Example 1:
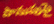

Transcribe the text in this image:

పానుపుపై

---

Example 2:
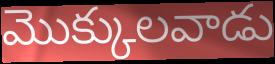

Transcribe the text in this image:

మొక్కులవాడు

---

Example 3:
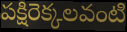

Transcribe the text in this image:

పక్షిరెక్కలవంటి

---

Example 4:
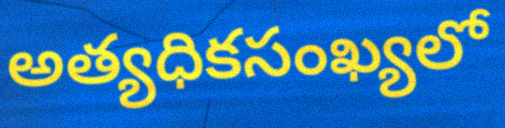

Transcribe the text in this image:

అత్యధికసంఖ్యలో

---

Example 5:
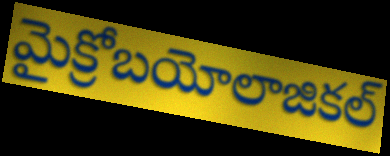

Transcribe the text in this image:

మైక్రోబయోలాజికల్